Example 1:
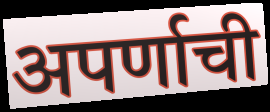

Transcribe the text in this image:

अपर्णाची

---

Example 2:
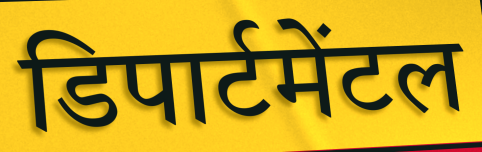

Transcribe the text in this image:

डिपार्टमेंटल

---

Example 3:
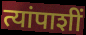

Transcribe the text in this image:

त्यांपाशीं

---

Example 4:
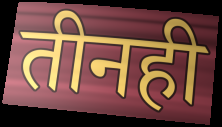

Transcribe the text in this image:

तीनही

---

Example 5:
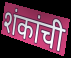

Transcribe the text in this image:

शंकांची